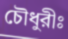
চৌধুরীঃ